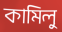
কামিলু